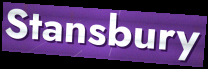
Stansbury